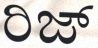
ರಿಜ್